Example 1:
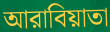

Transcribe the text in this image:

আরাবিয়াতা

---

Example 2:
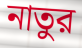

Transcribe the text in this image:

নাতুর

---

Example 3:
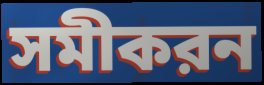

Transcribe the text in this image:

সমীকরন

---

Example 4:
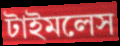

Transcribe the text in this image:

টাইমলেস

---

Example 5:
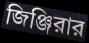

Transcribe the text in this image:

জিঞ্জিরার